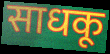
साधकू